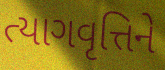
ત્યાગવૃત્તિને